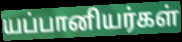
யப்பானியர்கள்